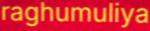
raghumuliya